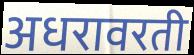
अधरावरती